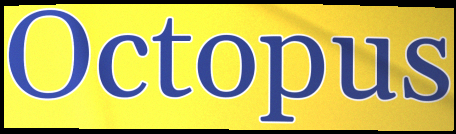
Octopus